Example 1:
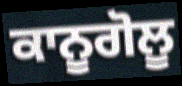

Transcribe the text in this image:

ਕਾਨੂਗੋਲੂ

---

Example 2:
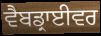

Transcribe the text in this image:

ਵੈਬਡ੍ਰਾਈਵਰ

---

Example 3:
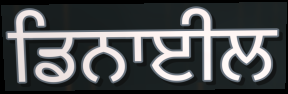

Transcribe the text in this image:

ਡਿਨਾਈਲ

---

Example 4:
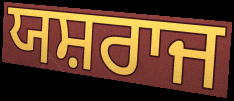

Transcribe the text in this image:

ਯਸ਼ਰਾਜ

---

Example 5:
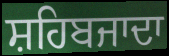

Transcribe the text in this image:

ਸ਼ਹਿਬਜਾਦਾ